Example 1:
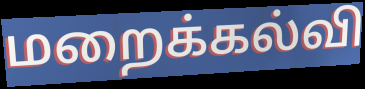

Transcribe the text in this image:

மறைக்கல்வி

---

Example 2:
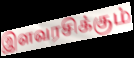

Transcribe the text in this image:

இளவரசிக்கும்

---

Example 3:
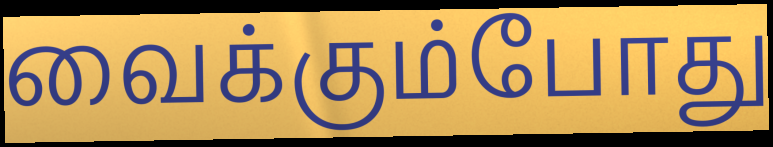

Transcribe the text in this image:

வைக்கும்போது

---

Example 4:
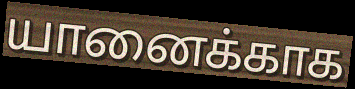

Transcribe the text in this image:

யானைக்காக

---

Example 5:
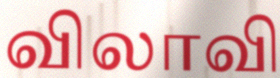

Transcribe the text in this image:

விலாவி